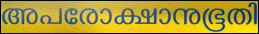
അപരോക്ഷാനുഭൂതി